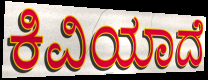
ಕಿವಿಯಾದೆ